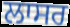
ਲਾਸਰ